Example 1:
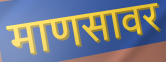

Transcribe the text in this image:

माणसावर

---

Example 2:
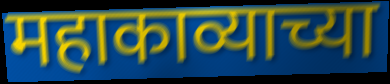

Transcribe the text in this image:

महाकाव्याच्या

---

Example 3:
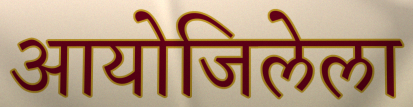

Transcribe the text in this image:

आयोजिलेला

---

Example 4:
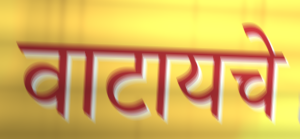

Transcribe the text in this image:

वाटायचे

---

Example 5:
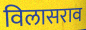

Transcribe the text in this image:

विलासराव